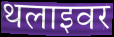
थलाइवर